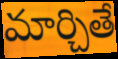
మార్చితే